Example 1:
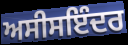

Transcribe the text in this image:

ਅਸੀਸਇੰਦਰ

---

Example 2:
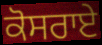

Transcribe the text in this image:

ਕੋਸਰਾਏ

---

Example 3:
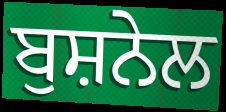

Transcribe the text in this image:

ਬੁਸ਼ਨੇਲ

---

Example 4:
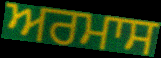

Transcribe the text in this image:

ਅਰਮਾਸ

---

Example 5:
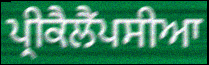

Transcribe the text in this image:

ਪ੍ਰੀਕੈਲੈਂਪਸੀਆ